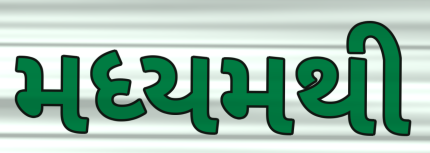
મધ્યમથી